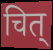
चित्